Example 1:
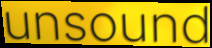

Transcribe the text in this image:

unsound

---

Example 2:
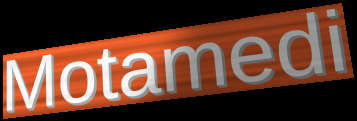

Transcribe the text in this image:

Motamedi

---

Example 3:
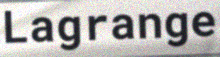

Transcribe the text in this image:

Lagrange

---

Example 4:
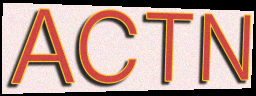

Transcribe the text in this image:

ACTN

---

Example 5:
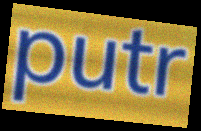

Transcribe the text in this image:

putr